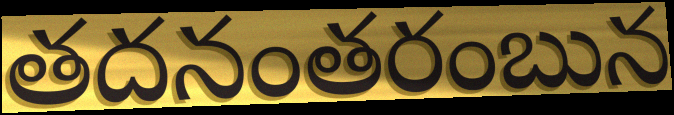
తదనంతరంబున